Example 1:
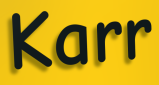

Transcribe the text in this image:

Karr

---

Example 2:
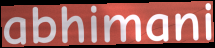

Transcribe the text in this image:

abhimani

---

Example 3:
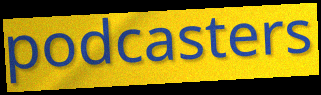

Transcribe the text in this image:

podcasters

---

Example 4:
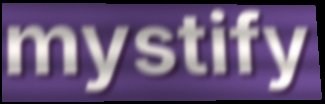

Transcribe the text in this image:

mystify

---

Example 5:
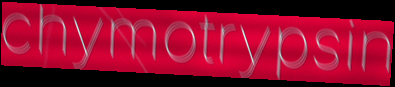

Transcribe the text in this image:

chymotrypsin